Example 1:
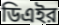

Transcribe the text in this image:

ডিএইর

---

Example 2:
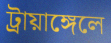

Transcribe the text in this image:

ট্রায়াঙ্গেলে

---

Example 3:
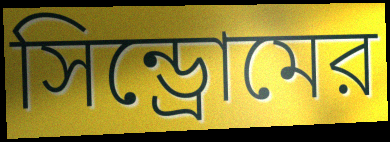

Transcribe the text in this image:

সিন্ড্রোমের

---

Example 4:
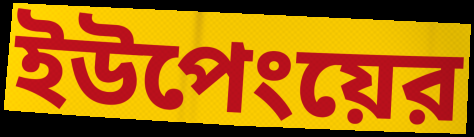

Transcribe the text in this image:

ইউপেংয়ের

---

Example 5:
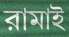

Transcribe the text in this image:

রামাই